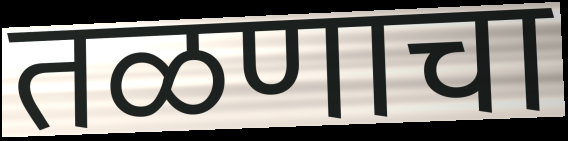
तळणाचा